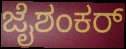
ಜೈಶಂಕರ್